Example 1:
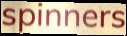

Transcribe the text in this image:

spinners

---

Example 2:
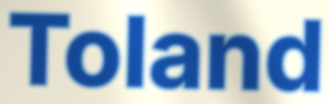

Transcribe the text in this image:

Toland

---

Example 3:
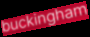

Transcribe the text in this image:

buckingham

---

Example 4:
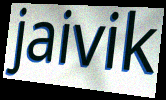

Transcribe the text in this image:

jaivik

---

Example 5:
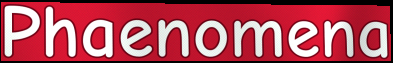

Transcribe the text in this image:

Phaenomena